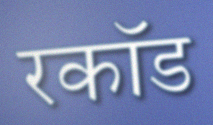
रकॉड